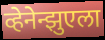
व्हेनेन्झुएला